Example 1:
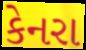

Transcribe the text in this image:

કેનરા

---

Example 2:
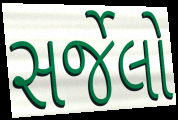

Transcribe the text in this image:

સર્જેલો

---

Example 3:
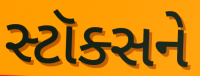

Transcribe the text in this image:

સ્ટૉક્સને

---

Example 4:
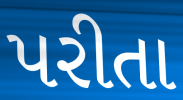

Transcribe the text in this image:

પરીતા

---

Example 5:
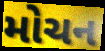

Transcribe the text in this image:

મોચન